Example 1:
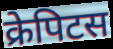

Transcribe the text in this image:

क्रेपिटस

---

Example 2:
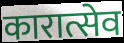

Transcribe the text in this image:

कारात्सेव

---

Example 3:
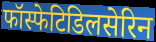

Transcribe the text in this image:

फॉस्फेटिडिलसेरिन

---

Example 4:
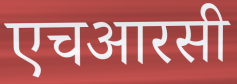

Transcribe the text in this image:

एचआरसी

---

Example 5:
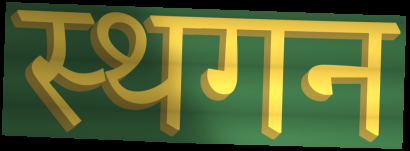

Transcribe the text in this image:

स्थगन